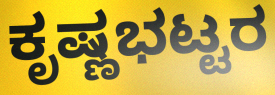
ಕೃಷ್ಣಭಟ್ಟರ